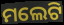
ମଲେଟି